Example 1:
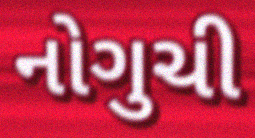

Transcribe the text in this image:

નોગુચી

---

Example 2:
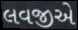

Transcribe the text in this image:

લવજીએ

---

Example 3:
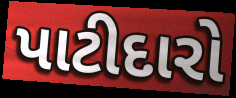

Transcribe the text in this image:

પાટીદારો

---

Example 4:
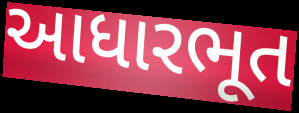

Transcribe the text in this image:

આધારભૂત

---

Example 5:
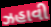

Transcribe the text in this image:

ઝહાવી